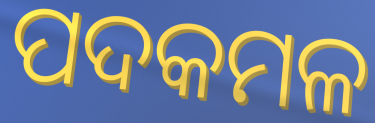
ପଦକମଳ